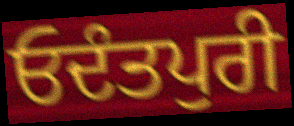
ਓਦੰਤਪੁਰੀ